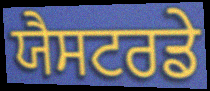
ਯੈਸਟਰਡੇ